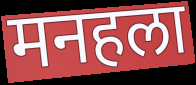
मनहला